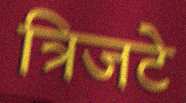
त्रिजटे